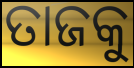
ତାଜକୁ